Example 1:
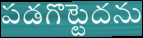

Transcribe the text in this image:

పడగొట్టెదను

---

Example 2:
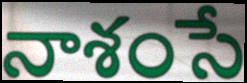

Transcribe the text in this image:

నాశంసే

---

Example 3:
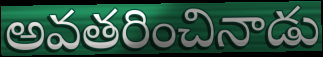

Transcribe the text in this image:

అవతరించినాడు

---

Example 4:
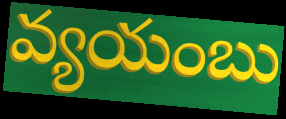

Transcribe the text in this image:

వ్యయంబు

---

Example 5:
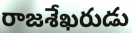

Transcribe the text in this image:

రాజశేఖరుడు